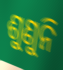
ଶୁଣୁନି